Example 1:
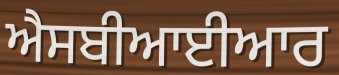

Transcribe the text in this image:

ਐਸਬੀਆਈਆਰ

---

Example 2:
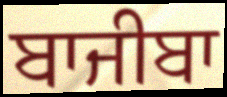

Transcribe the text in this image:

ਬਾਜੀਬਾ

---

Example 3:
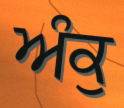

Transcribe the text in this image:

ਅੰਕੁ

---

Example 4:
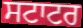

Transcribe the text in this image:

ਸਟਾਟਰ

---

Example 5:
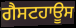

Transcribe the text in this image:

ਗੈਸਟਹਾਊਸ